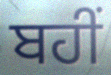
ਬਹੀਂ